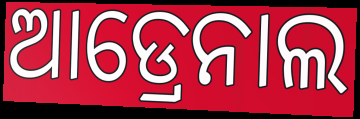
ଆଡ୍ରେନାଲ